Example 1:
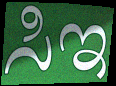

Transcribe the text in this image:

ಸಿಇ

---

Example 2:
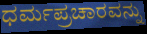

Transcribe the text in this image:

ಧರ್ಮಪ್ರಚಾರವನ್ನು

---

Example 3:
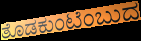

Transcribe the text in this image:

ತೊಡಕುಂಟೆಂಬುದ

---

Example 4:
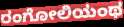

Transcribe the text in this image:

ರಂಗೋಲಿಯಂಥ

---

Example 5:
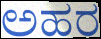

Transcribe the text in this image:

ಅಹರ